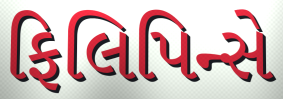
ફિલિપિન્સે